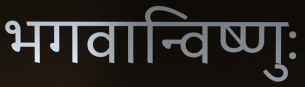
भगवान्विष्णुः